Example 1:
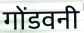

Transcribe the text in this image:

गोंडवनी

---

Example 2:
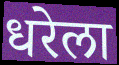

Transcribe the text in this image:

धरेला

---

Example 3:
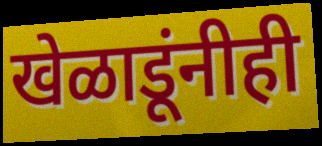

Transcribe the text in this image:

खेळाडूंनीही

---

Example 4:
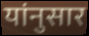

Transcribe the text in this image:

यांनुसार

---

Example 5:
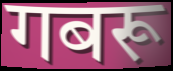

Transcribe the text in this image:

गबरू